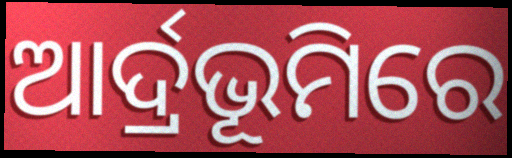
ଆର୍ଦ୍ରଭୂମିରେ